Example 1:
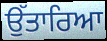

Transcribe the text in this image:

ਉੱਤਾਰਿਆ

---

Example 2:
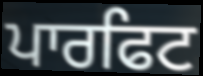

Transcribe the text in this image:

ਪਾਰਫਿਟ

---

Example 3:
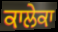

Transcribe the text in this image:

ਕਾਲੇਕਾ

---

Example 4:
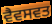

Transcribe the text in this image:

ਵੈਵਸਵਤ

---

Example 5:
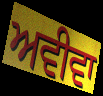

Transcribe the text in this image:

ਅਵੀਵਾ